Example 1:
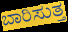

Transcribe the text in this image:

ಬಾರಿಸುತ್ತ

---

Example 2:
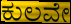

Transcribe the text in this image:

ಕುಲವೇ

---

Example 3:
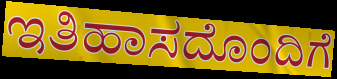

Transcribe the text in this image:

ಇತಿಹಾಸದೊಂದಿಗೆ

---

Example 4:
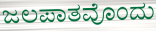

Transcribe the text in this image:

ಜಲಪಾತವೊಂದು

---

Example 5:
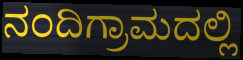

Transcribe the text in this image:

ನಂದಿಗ್ರಾಮದಲ್ಲಿ